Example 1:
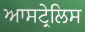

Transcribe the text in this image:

ਆਸਟ੍ਰੇਲਿਸ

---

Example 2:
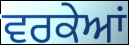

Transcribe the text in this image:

ਵਰਕੇਆਂ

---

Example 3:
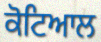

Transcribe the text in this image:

ਕੋਟਿਆਲ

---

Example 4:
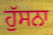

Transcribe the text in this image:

ਹੁੱਸਨਾ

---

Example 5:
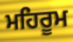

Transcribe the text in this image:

ਮਹਿਰੂਮ